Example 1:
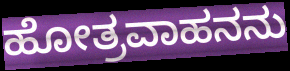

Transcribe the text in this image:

ಹೋತ್ರವಾಹನನು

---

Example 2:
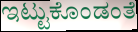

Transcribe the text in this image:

ಇಟ್ಟುಕೊಂಡಂತೆ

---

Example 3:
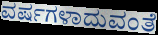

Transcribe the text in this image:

ವರ್ಷಗಳಾದುವಂತೆ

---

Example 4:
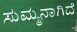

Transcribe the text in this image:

ಸುಮ್ಮನಾಗಿದೆ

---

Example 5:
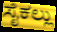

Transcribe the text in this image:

ಸೈಕಲ್ಲು